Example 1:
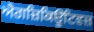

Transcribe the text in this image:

ਐਗਜ਼ਿਕਿਊਟਿਵਜ਼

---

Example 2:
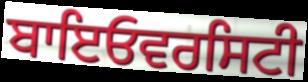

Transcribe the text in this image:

ਬਾਇਓਵਰਸਿਟੀ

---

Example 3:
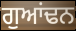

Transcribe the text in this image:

ਗੁਆਂਢਨ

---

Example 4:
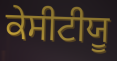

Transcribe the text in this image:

ਕੇਸੀਟੀਯੂ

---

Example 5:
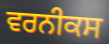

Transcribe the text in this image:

ਵਰਨੀਕਸ